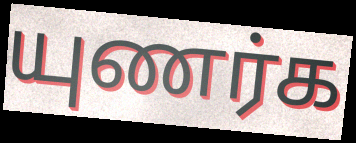
யுணர்க